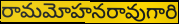
రామమోహనరావుగారి